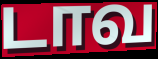
டாவ